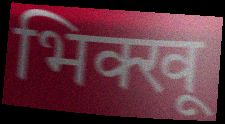
भिक्खू